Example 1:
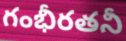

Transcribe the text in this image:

గంభీరతనీ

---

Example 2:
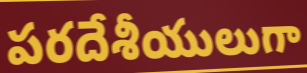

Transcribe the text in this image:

పరదేశీయులుగా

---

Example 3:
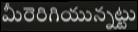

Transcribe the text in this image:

మీరెరిగియున్నట్టు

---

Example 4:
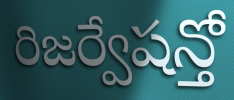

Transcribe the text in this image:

రిజర్వేషన్తో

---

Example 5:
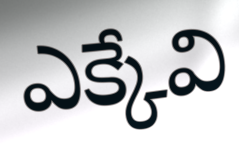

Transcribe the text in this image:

ఎక్కేవి